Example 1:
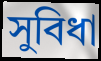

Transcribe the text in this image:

সুবিধা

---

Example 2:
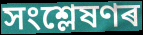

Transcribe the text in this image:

সংশ্লেষণৰ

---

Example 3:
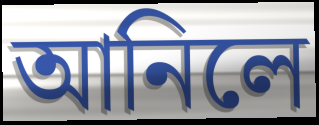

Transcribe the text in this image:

আনিলে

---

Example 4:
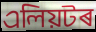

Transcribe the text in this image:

এলিয়টৰ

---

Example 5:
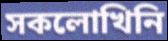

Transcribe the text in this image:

সকলোখিনি